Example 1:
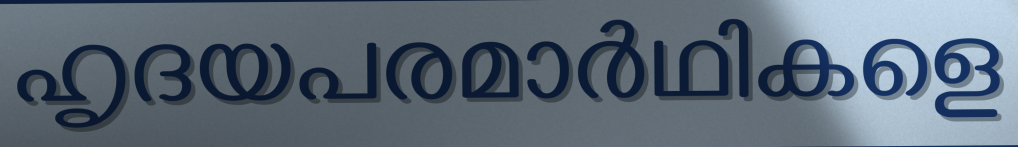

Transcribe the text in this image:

ഹൃദയപരമാർഥികളെ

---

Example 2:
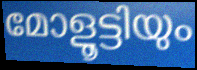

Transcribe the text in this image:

മോളൂട്ടിയും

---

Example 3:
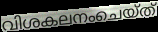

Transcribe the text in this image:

വിശകലനംചെയ്ത്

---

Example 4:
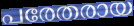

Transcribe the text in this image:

പരേതരായ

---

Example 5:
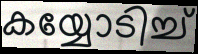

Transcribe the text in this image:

കയ്യോടിച്ച്